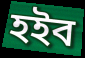
হইব